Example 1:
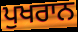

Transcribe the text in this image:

ਪੁਖਰਾਨ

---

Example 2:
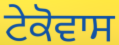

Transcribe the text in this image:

ਟੇਕੋਵਾਸ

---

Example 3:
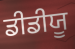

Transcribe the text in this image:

ਡੀਡੀਯੂ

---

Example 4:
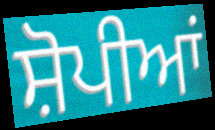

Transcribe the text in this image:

ਸ਼ੋਪੀਆਂ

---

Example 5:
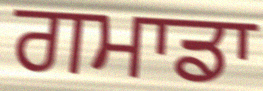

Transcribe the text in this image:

ਗਮਾਡਾ